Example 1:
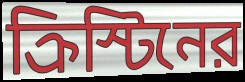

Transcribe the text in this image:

ক্রিস্টিনের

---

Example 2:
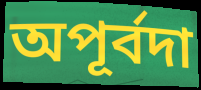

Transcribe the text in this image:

অপূর্বদা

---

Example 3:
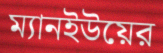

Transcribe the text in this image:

ম্যানইউয়ের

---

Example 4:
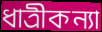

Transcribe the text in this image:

ধাত্রীকন্যা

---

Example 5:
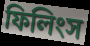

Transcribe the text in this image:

ফিলিংস